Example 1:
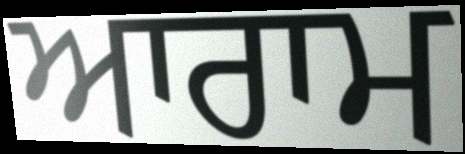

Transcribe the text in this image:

ਆਰਾਮ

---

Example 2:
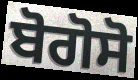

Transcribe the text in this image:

ਬੋਗੋਸੋ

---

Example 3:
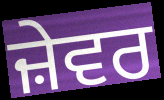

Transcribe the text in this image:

ਜ਼ੇਵਰ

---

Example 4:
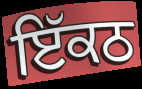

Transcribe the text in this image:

ਇੱਕਠ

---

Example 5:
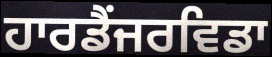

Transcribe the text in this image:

ਹਾਰਡੈਂਜਰਵਿਡਾ